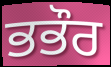
ਭਭੌਰ